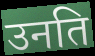
उनति